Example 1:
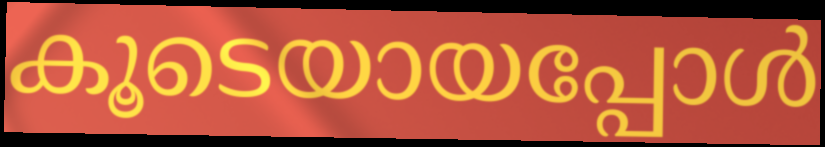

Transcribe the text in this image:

കൂടെയായപ്പോൾ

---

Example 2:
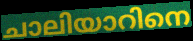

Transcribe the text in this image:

ചാലിയാറിനെ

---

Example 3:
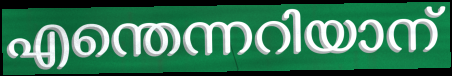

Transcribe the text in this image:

എന്തെന്നറിയാന്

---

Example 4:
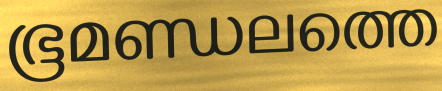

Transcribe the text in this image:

ഭൂമണ്ഡലത്തെ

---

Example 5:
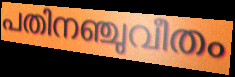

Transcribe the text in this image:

പതിനഞ്ചുവീതം